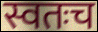
स्वतःच